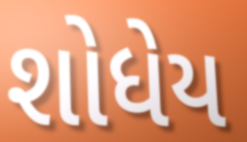
શોધેય